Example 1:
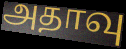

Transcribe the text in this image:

அதாவு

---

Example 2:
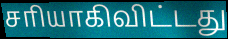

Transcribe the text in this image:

சரியாகிவிட்டது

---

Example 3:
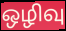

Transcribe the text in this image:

ஒழிவு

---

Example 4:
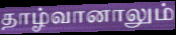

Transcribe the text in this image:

தாழ்வானாலும்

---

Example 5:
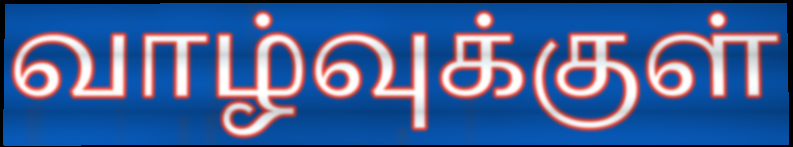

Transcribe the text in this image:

வாழ்வுக்குள்